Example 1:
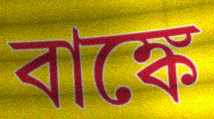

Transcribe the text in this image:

বাঙ্কে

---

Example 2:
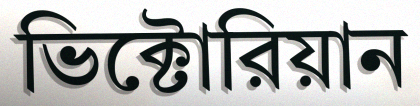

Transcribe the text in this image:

ভিক্টোরিয়ান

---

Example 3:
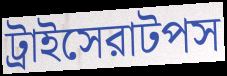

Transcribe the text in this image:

ট্রাইসেরাটপস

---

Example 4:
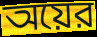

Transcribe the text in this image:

অয়ের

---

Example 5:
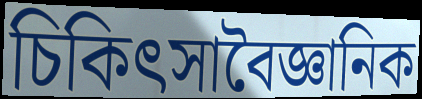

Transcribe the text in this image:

চিকিৎসাবৈজ্ঞানিক